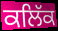
ਕਲਿੱਕ